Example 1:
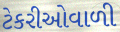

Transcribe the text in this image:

ટેકરીઓવાળી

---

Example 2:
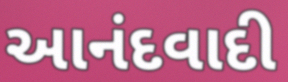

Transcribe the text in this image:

આનંદવાદી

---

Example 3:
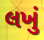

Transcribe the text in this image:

લખું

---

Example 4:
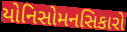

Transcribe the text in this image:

યોનિસોમનસિકારો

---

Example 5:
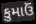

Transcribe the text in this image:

કુમાઉં